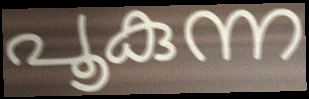
പൂകുന്ന